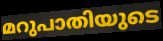
മറുപാതിയുടെ